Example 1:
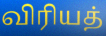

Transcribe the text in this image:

விரியத்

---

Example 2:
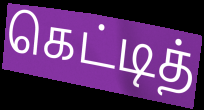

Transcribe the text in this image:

கெட்டித்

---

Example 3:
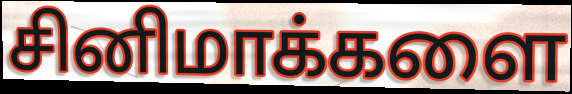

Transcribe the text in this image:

சினிமாக்களை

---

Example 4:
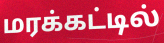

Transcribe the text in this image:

மரக்கட்டில்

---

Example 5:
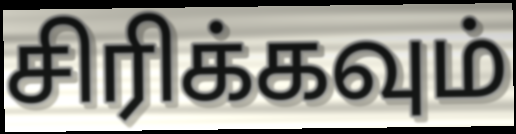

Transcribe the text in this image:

சிரிக்கவும்